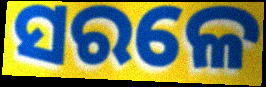
ସରଳେ